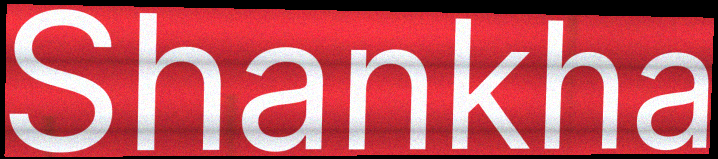
Shankha